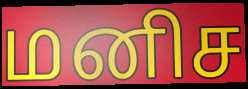
மனிச